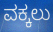
ವಕ್ಕಲು